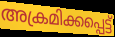
അക്രമിക്കപ്പെട്ട്